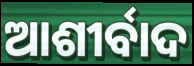
ଆଶୀର୍ବାଦ